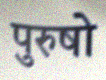
पुरुषो